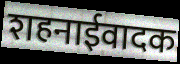
शहनाईवादक